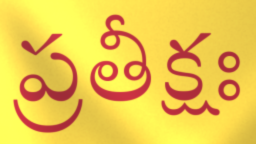
ప్రతీక్షః